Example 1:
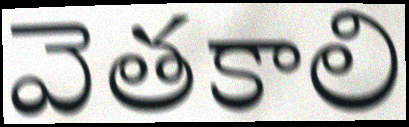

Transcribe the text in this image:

వెతకాలి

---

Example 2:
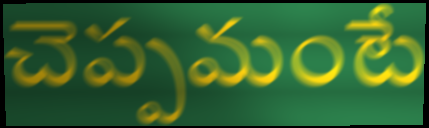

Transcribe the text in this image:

చెప్పమంటే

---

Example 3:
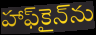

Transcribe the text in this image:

హాఫ్‌కైన్‌ను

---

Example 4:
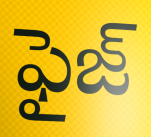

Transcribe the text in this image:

ఫైజ్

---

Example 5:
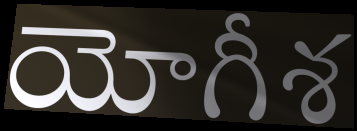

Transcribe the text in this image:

యోగీశ